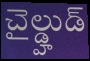
చైల్డ్హుడ్